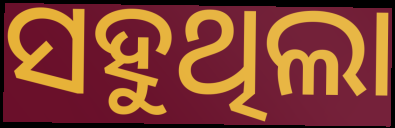
ସହୁଥିଲା